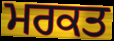
ਮਰਕਤ